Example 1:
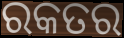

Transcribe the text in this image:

ରକତର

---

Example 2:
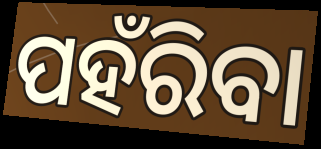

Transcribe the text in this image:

ପହଁରିବା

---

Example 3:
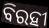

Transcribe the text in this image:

ବିରହୀ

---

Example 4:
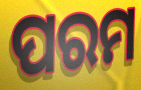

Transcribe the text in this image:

ପରମ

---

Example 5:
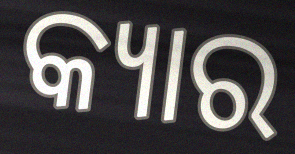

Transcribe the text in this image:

କ୍ୟାର